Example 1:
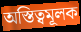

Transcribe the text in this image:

অস্তিত্বমূলক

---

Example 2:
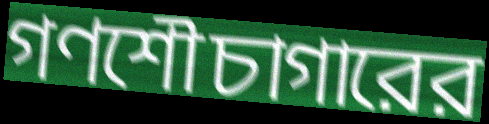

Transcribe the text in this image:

গণশৌচাগারের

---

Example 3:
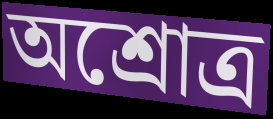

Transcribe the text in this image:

অশ্রোত্র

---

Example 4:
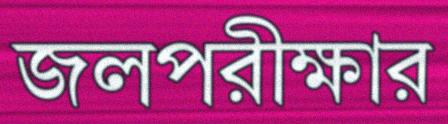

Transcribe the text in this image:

জলপরীক্ষার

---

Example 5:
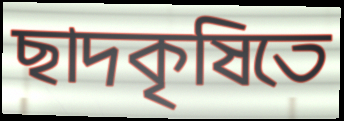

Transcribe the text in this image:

ছাদকৃষিতে